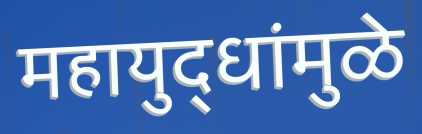
महायुद्धांमुळे